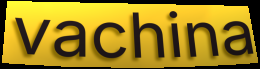
vachina